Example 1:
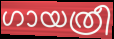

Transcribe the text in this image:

ഗായത്രീ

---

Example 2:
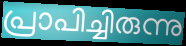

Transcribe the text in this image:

പ്രാപിച്ചിരുന്നു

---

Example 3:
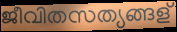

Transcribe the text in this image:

ജീവിതസത്യങ്ങള്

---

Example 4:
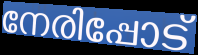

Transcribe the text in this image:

നേരിപ്പോട്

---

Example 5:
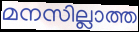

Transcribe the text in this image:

മനസില്ലാത്ത